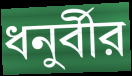
ধনুর্বীর